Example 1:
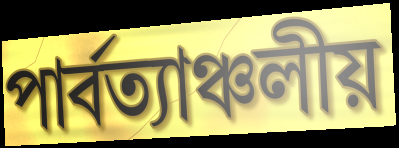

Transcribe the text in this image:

পার্বত্যাঞ্চলীয়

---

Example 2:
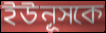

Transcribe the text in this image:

ইউনূসকে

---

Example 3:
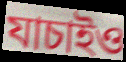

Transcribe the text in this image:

যাচাইও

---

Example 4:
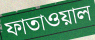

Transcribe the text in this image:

ফাতাওয়াল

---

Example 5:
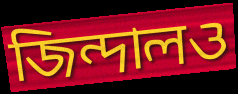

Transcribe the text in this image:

জিন্দালও